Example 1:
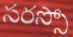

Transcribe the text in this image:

సరస్సో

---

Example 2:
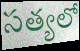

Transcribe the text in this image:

సత్యలో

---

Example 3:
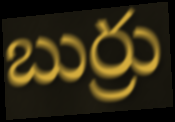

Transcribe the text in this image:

బుర్రు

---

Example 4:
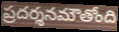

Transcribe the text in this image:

ప్రదర్శనమౌతోంది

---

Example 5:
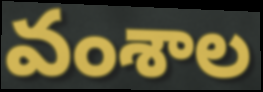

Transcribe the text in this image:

వంశాల